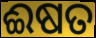
ଈଷତ